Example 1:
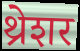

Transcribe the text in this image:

थ्रेशर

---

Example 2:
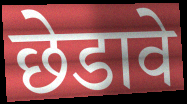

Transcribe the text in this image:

छेडावे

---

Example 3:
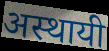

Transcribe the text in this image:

अस्थायी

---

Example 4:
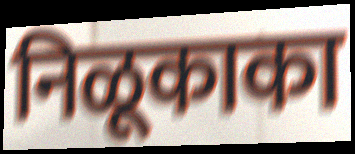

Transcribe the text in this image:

निळूकाका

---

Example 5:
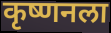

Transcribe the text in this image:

कृष्णनला